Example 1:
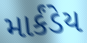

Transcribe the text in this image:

માર્કંડેય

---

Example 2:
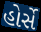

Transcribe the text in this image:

હોર્સે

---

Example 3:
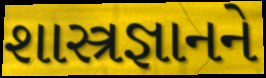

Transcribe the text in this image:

શાસ્ત્રજ્ઞાનને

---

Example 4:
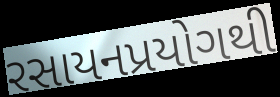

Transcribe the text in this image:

રસાયનપ્રયોગથી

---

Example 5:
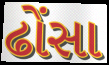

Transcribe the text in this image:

ઢોંસા